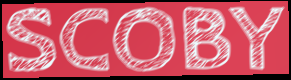
SCOBY